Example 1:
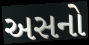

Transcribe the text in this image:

અસનો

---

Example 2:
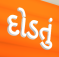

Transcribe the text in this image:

દોડતું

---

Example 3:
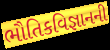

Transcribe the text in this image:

ભૌતિકવિજ્ઞાનની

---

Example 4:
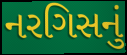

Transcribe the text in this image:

નરગિસનું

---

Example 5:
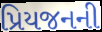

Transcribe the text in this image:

પ્રિયજનની